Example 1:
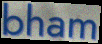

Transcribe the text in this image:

bham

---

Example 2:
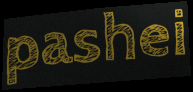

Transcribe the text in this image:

pashei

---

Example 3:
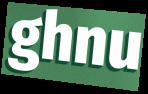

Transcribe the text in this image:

ghnu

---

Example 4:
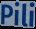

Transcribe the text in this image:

Pili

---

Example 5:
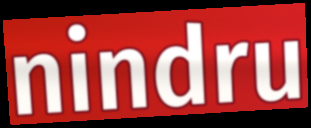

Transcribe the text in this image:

nindru